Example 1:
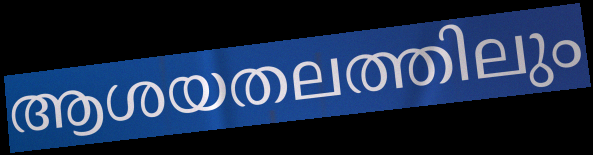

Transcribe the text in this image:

ആശയതലത്തിലും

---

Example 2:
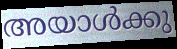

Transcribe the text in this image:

അയാൾക്കു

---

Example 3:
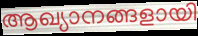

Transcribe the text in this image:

ആഖ്യാനങ്ങളായി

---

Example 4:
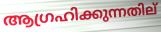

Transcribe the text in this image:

ആഗ്രഹിക്കുന്നതില്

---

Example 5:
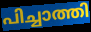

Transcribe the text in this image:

പിച്ചാത്തി